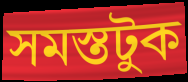
সমস্তটুক